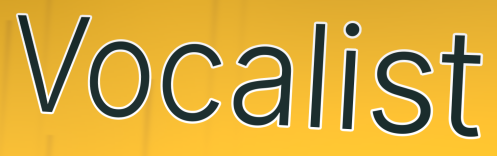
Vocalist